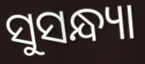
ସୁସନ୍ଧ୍ୟା